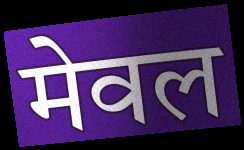
मेवल